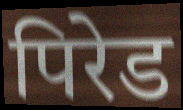
पिरेड